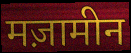
मज़ामीन